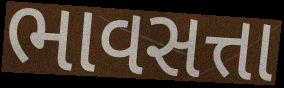
ભાવસત્તા